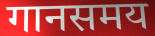
गानसमय